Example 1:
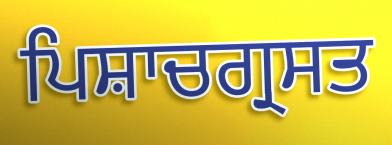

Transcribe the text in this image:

ਪਿਸ਼ਾਚਗ੍ਰਸਤ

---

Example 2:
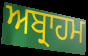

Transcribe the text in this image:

ਅਬ੍ਰਾਹਮ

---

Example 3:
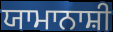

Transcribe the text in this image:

ਯਾਮਾਨਾਸ਼ੀ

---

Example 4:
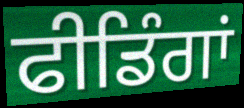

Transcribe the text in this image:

ਫੀਡਿੰਗਾਂ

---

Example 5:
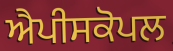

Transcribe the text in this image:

ਐਪੀਸਕੋਪਲ